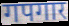
गपगार